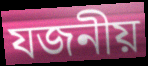
যজনীয়